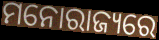
ମନୋରାଜ୍ୟରେ